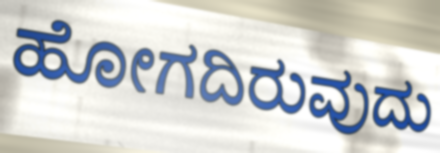
ಹೋಗದಿರುವುದು